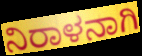
ನಿರಾಳನಾಗಿ